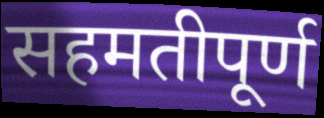
सहमतीपूर्ण